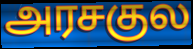
அரசகுல